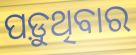
ପଡ଼ୁଥିବାର